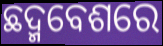
ଛଦ୍ମବେଶରେ